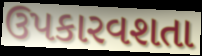
ઉપકારવશતા